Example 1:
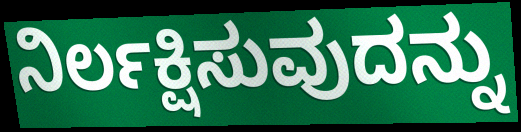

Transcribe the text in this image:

ನಿರ್ಲಕ್ಷಿಸುವುದನ್ನು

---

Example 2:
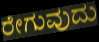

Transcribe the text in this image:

ರೇಗುವುದು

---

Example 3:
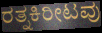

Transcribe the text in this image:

ರತ್ನಕಿರೀಟವು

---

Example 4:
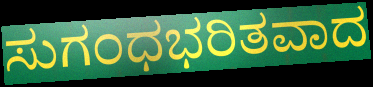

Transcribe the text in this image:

ಸುಗಂಧಭರಿತವಾದ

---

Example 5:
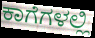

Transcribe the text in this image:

ಕಾಗೆಗಳಲ್ಲಿ